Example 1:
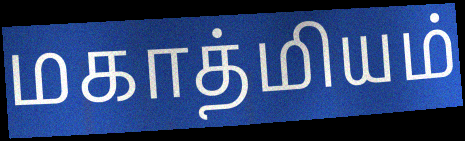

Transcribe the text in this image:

மகாத்மியம்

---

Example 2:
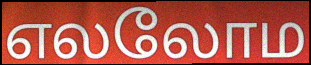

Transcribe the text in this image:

எலலோம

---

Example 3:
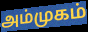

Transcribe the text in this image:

அம்முகம்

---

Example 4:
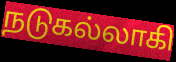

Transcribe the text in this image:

நடுகல்லாகி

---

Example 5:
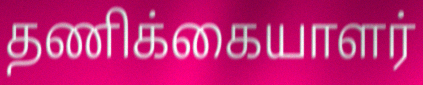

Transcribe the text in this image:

தணிக்கையாளர்